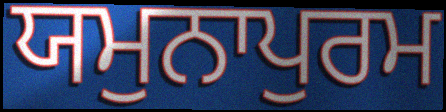
ਯਮੁਨਾਪੁਰਮ